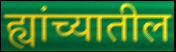
ह्यांच्यातील